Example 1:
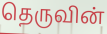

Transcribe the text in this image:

தெருவின்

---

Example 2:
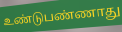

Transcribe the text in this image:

உண்டுபண்ணாது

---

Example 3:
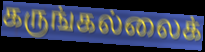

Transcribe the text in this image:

கருங்கல்லைக்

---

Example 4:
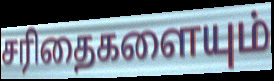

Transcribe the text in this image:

சரிதைகளையும்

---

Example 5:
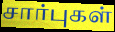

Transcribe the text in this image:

சார்புகள்